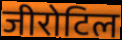
जीरोटिल